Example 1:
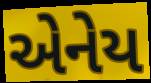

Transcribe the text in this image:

એનેય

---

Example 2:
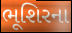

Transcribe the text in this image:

ભૂશિરના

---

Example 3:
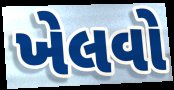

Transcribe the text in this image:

ખેલવો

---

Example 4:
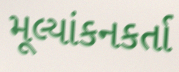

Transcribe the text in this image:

મૂલ્યાંકનકર્તા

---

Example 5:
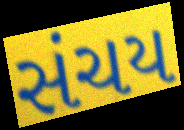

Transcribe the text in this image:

સંચય